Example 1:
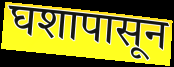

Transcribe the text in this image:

घशापासून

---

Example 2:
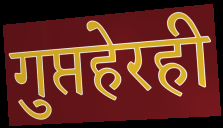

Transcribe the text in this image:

गुप्तहेरही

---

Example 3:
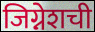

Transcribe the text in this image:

जिग्नेशची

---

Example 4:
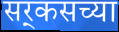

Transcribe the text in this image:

सर्कसच्या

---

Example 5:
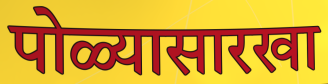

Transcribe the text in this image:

पोळ्यासारखा